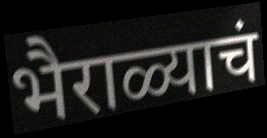
भैराळ्याचं